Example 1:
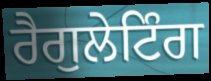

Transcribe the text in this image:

ਰੈਗੁਲੇਟਿੰਗ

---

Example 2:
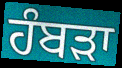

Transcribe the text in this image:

ਹੰਬਡ਼ਾ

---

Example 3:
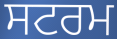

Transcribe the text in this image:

ਸਟਰਮ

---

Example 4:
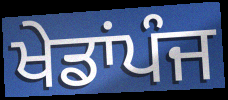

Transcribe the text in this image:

ਖੇਡਾਂਪੰਜ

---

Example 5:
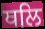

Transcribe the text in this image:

ਥਲਿ